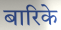
बारिके